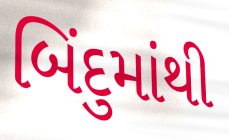
બિંદુમાંથી